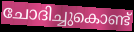
ചോദിച്ചുകൊണ്ട്